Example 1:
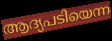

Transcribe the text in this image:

ആദ്യപടിയെന്ന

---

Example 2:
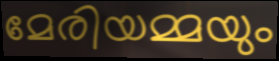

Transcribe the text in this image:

മേരിയമ്മയും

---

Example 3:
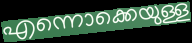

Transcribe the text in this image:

എന്നൊക്കെയുള്ള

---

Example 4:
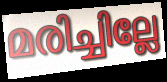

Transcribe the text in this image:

മരിച്ചില്ലേ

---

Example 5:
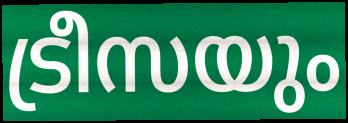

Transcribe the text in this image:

ട്രീസയും